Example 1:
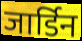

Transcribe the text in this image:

जार्डिन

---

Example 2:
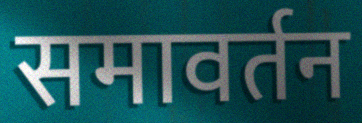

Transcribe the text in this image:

समावर्तन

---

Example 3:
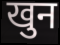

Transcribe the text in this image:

खुन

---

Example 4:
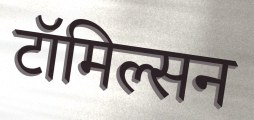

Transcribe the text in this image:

टॉमिल्सन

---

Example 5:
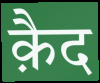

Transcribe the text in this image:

क़ैद